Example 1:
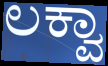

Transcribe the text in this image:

ಲಕ್ವಾ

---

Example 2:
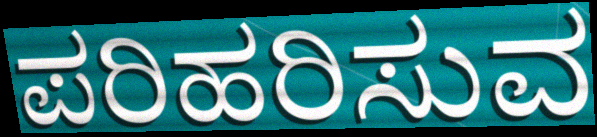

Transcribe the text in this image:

ಪರಿಹರಿಸುವ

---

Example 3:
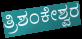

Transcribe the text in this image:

ತ್ರಿಶಂಕೇಶ್ವರ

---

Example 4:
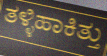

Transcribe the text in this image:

ತಳ್ಳಿಹಾಕಿತ್ತು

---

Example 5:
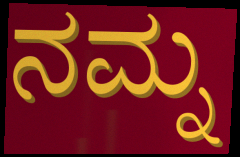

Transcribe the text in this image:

ನಮ್ನ